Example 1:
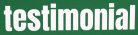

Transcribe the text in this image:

testimonial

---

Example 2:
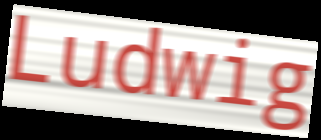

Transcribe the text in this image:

Ludwig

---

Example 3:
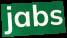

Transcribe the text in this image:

jabs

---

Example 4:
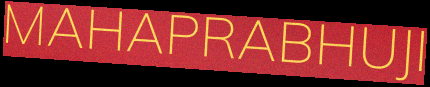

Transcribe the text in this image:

MAHAPRABHUJI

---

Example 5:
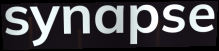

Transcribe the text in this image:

synapse